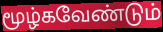
மூழ்கவேண்டும்